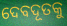
ଦେବଦୂତକୁ